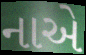
નાએ